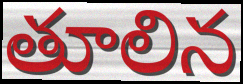
తూలిన